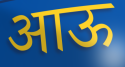
आऊ